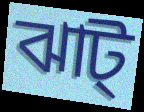
ঝাট্